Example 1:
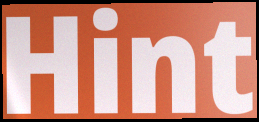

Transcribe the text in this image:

Hint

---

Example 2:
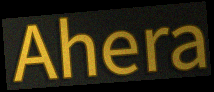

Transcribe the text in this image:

Ahera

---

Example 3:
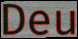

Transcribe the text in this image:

Deu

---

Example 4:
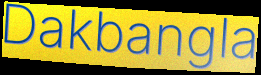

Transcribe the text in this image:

Dakbangla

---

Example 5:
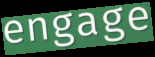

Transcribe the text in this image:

engage